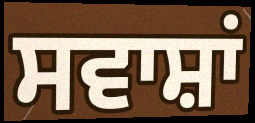
ਸਵਾਸ਼ਾਂ